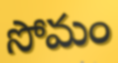
సోమం